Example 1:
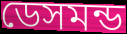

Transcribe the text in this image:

ডেসমন্ড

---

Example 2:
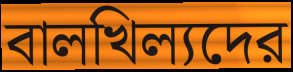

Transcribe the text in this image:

বালখিল্যদের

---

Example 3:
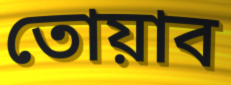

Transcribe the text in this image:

তোয়াব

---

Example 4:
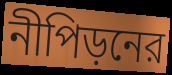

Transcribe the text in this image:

নীপিড়নের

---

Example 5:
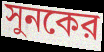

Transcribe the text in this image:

সুনকের